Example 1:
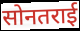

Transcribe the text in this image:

सोनतराई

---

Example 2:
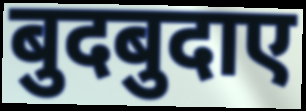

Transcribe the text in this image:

बुदबुदाए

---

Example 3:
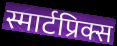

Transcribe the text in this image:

स्मार्टप्रिक्स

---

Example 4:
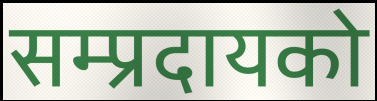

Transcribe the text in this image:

सम्प्रदायको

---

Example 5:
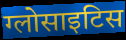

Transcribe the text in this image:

ग्लोसाइटिस